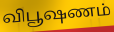
விபூஷணம்